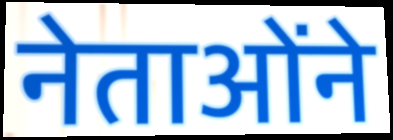
नेताओंने